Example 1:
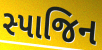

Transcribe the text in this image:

સ્પાજિન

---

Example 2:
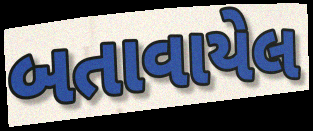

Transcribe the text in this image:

બતાવાયેલ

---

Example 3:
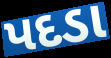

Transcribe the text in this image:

પદડા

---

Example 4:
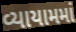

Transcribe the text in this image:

વ્યાયામમાં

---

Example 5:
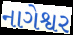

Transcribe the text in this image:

નાગેશ્વર